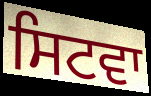
ਸਿਟਵਾ